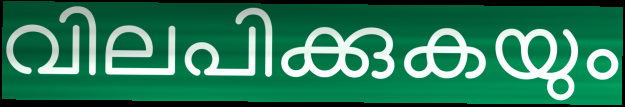
വിലപിക്കുകയും